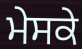
ਮੇਸਕੇ